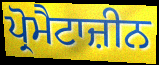
ਪ੍ਰੋਮੈਟਾਜ਼ੀਨ